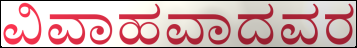
ವಿವಾಹವಾದವರ